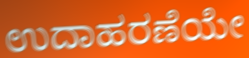
ಉದಾಹರಣೆಯೇ